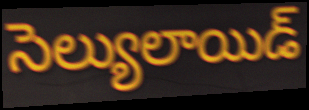
సెల్యులాయిడ్